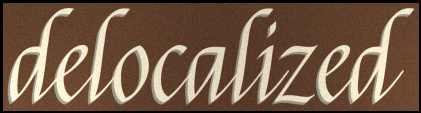
delocalized